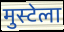
मुस्टेला